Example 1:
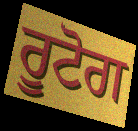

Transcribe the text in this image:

ਰੂਟੋਗ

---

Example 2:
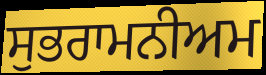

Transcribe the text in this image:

ਸੁਭਰਾਮਨੀਅਮ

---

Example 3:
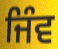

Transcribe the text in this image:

ਜਿੰਵ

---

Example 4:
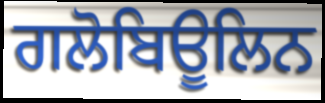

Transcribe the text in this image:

ਗਲੋਬਿਊਲਿਨ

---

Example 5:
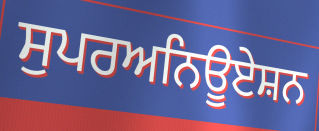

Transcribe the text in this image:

ਸੁਪਰਅਨਿਊਏਸ਼ਨ